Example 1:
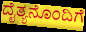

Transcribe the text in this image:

ದೈತ್ಯನೊಂದಿಗೆ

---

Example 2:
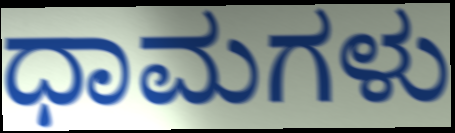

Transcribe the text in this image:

ಧಾಮಗಳು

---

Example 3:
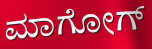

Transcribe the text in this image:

ಮಾಗೋಗ್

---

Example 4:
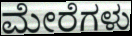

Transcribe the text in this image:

ಮೇರೆಗಳು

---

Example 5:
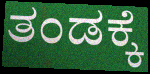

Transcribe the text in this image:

ತಂಡಕ್ಕೆ